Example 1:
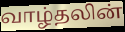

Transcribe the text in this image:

வாழ்தலின்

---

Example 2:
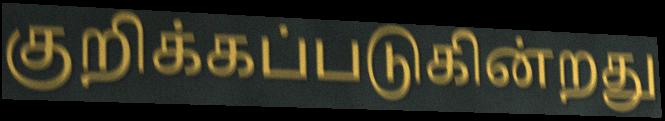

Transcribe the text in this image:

குறிக்கப்படுகின்றது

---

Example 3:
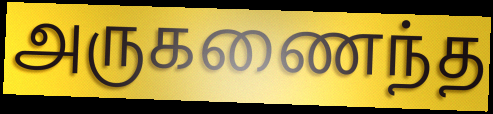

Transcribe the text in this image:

அருகணைந்த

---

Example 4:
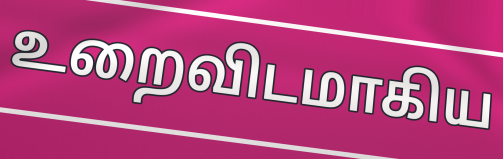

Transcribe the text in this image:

உறைவிடமாகிய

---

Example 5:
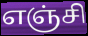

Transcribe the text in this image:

எஞ்சி